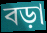
বড়া